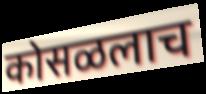
कोसळलाच